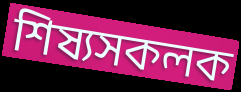
শিষ্যসকলক